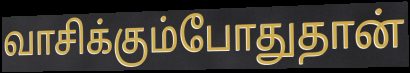
வாசிக்கும்போதுதான்